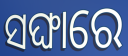
ସଙ୍ଘାରେ